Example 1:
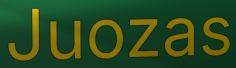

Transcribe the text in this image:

Juozas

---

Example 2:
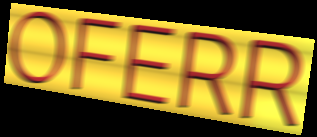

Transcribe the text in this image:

OFERR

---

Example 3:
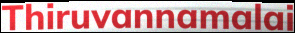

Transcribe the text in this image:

Thiruvannamalai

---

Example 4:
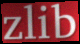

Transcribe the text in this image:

zlib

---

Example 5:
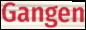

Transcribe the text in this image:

Gangen